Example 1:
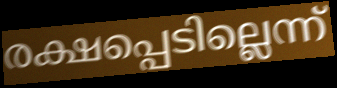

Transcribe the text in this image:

രക്ഷപ്പെടില്ലെന്ന്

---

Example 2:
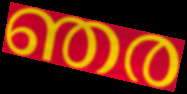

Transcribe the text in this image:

ഞര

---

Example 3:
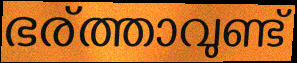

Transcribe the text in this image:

ഭര്ത്താവുണ്ട്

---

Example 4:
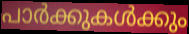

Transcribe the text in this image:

പാർക്കുകൾക്കും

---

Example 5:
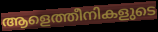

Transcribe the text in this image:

ആളെത്തീനികളുടെ